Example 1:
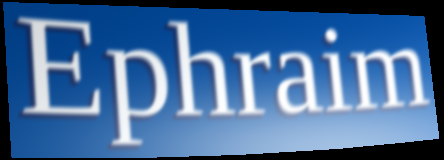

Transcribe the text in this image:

Ephraim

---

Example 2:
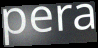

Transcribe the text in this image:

pera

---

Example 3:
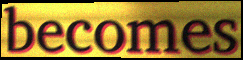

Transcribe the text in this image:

becomes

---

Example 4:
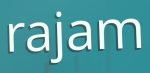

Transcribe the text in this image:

rajam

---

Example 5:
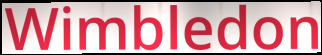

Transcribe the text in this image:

Wimbledon